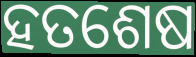
ହତଶେଷ